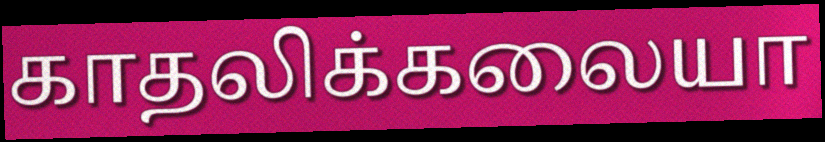
காதலிக்கலையா